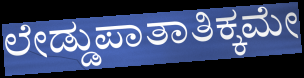
ಲೇಡ್ಡುಪಾತಾತಿಕ್ಕಮೇ